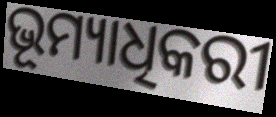
ଭୂମ୍ୟାଧିକରୀ